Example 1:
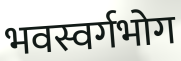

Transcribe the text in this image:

भवस्वर्गभोग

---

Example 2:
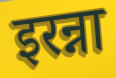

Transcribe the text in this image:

इरन्ना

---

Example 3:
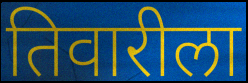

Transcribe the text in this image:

तिवारीला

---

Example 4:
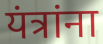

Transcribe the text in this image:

यंत्रांना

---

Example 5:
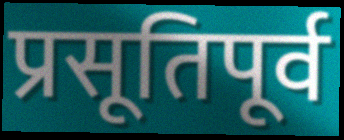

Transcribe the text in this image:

प्रसूतिपूर्व